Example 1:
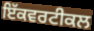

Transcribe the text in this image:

ਇੱਕਵਰਟੀਕਲ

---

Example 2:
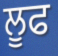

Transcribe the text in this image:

ਲੂਫ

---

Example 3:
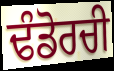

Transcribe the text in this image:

ਢੰਡੋਰਚੀ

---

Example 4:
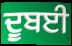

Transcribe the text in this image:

ਦੂਬਈ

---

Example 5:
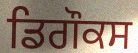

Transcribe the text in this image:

ਡਿਗੌਕਸ